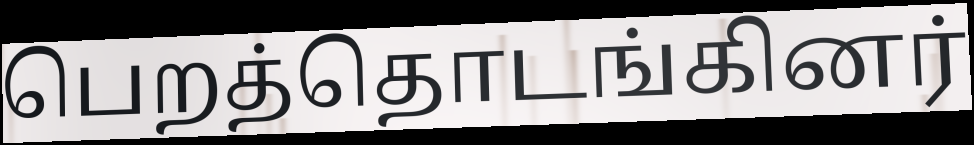
பெறத்தொடங்கினர்